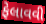
ફેલાવવી